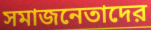
সমাজনেতাদের